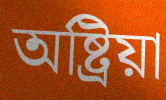
অষ্ট্ৰিয়া